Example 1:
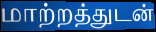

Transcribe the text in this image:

மாற்றத்துடன்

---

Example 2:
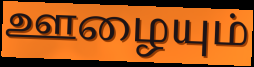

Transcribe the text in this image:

ஊழையும்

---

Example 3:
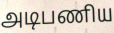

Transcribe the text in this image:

அடிபணிய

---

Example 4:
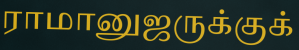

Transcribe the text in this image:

ராமானுஜருக்குக்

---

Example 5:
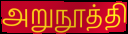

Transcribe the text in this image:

அறுநூத்தி